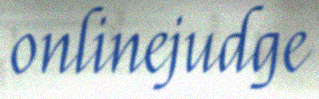
onlinejudge